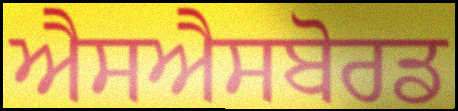
ਐਸਐਸਬੋਰਡ